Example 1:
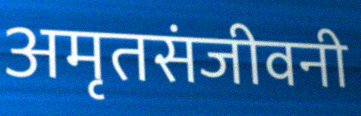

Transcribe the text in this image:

अमृतसंजीवनी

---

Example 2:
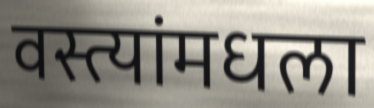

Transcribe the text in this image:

वस्त्यांमधला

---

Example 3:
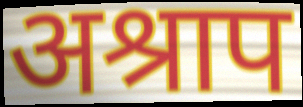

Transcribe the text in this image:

अश्राप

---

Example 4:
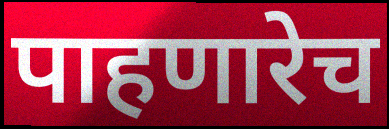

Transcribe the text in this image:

पाहणारेच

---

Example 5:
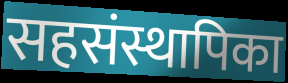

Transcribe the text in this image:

सहसंस्थापिका